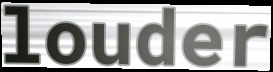
louder